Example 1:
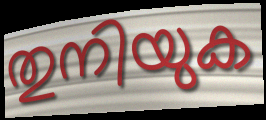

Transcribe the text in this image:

തുനിയുക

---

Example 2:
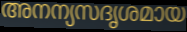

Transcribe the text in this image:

അനന്യസദൃശമായ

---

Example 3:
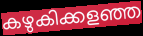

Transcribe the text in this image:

കഴുകിക്കളഞ്ഞ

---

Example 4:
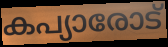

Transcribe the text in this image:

കപ്യാരോട്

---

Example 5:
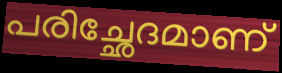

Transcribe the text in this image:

പരിച്ഛേദമാണ്